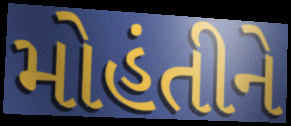
મોહંતીને